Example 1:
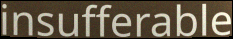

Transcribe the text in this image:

insufferable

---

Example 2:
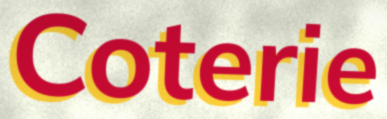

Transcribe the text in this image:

Coterie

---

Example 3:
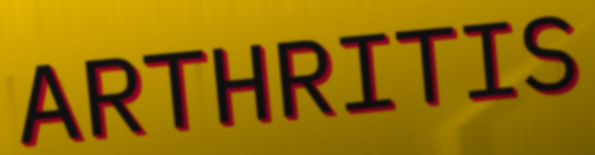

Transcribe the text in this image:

ARTHRITIS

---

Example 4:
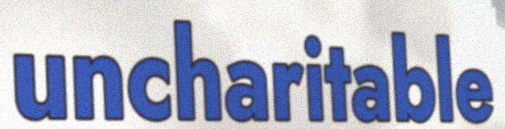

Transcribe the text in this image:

uncharitable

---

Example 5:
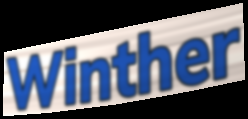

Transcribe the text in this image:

Winther